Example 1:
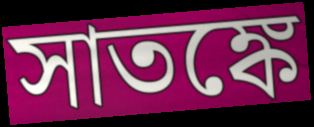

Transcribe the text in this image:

সাতঙ্কে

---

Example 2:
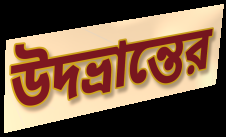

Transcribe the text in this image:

উদভ্রান্তের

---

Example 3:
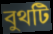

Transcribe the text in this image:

বুথটি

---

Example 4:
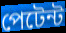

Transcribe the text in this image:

পেটেন্ট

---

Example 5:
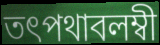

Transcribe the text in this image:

তৎপথাবলম্বী